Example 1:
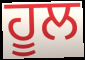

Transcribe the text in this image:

ਹੂਲ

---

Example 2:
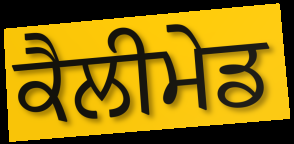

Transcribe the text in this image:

ਕੈਲੀਮੇਡ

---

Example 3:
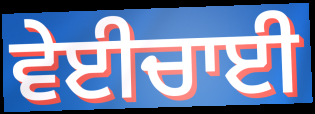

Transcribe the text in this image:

ਵੇਈਚਾਈ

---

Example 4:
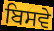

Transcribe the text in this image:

ਬਿਸਵੇ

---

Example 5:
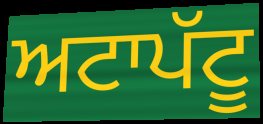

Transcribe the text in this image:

ਅਟਾਪੱਟੂ